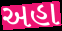
અહા